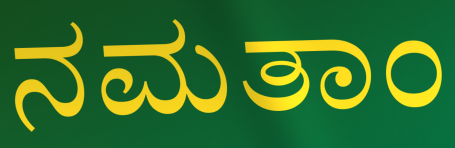
ನಮತಾಂ